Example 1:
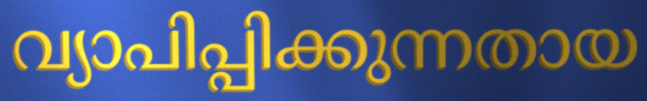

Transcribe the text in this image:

വ്യാപിപ്പിക്കുന്നതായ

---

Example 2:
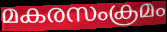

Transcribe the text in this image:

മകരസംക്രമം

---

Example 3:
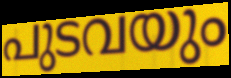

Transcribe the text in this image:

പുടവയും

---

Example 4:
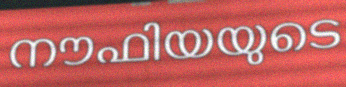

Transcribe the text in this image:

നൗഫിയയുടെ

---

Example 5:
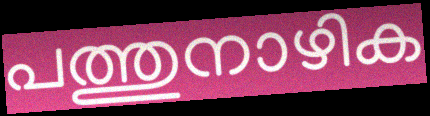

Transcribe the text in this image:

പത്തുനാഴിക